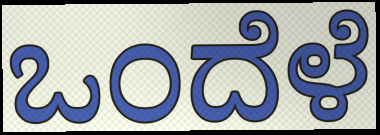
ಒಂದೆಳೆ